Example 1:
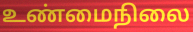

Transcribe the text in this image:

உண்மைநிலை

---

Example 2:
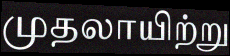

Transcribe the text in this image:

முதலாயிற்று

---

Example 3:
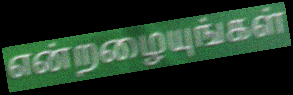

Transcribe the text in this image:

என்றழையுங்கள்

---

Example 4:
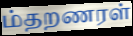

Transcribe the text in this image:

ம்தறணரள்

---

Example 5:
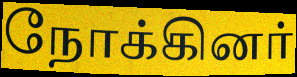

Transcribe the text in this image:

நோக்கினர்